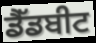
ਡੈੱਡਬੀਟ